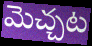
మెచ్చట